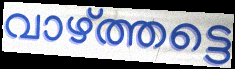
വാഴ്ത്തട്ടെ